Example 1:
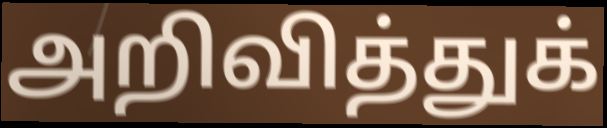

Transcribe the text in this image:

அறிவித்துக்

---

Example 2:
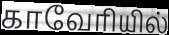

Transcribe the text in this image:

காவேரியில்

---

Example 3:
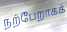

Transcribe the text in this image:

நற்பேறாகக்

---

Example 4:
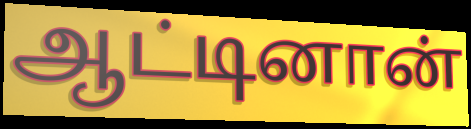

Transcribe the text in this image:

ஆட்டினான்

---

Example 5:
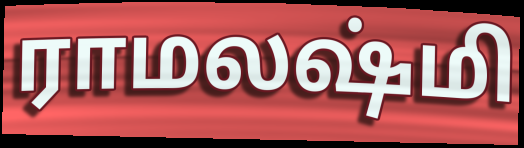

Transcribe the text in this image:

ராமலஷ்மி